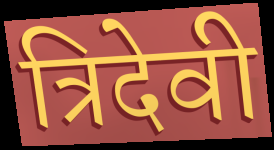
त्रिदेवी